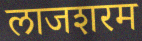
लाजशरम